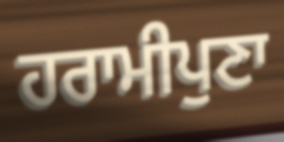
ਹਰਾਮੀਪੁਣਾ